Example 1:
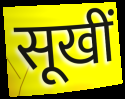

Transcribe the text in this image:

सूखीं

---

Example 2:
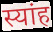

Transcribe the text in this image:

स्यांह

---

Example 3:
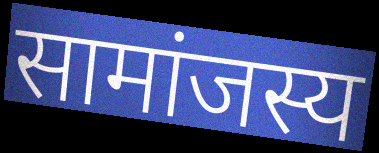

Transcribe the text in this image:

सामांजस्य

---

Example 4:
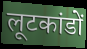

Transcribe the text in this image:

लूटकांडों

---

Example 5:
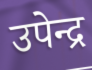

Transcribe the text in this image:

उपेन्द्र